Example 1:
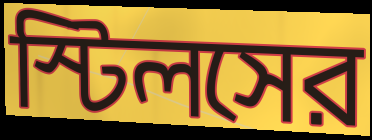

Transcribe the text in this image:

স্টিলসের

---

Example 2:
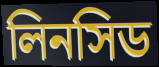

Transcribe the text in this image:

লিনসিড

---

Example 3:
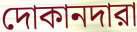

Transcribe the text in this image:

দোকানদারা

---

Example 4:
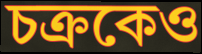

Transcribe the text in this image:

চক্রকেও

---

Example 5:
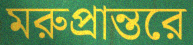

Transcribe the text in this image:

মরুপ্রান্তরে